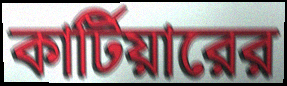
কার্টিয়ারের